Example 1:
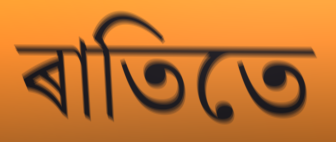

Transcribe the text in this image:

ৰাতিতে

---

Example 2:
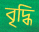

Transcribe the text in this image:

বৃদ্ধি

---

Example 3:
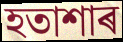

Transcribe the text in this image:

হতাশাৰ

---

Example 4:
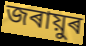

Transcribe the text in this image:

জৰায়ুৰ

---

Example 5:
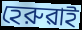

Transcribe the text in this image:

হেৰুৱাই